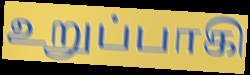
உறுப்பாகி